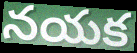
నయక